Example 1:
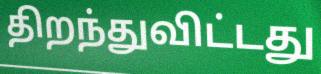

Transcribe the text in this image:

திறந்துவிட்டது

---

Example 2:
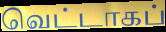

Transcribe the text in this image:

வெட்டாகப்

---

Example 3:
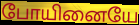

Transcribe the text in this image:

போயினையே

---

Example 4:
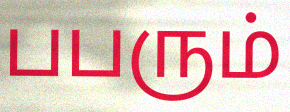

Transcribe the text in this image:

பபரும்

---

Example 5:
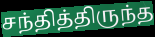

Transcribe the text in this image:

சந்தித்திருந்த